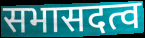
सभासदत्व